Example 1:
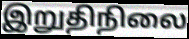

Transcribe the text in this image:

இறுதிநிலை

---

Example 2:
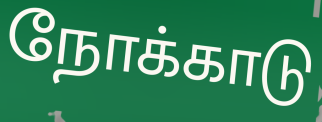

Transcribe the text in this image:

நோக்காடு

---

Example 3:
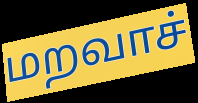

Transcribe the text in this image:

மறவாச்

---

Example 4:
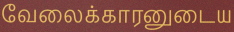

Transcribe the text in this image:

வேலைக்காரனுடைய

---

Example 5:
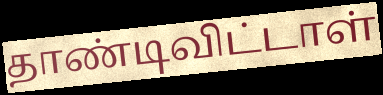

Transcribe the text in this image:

தாண்டிவிட்டாள்